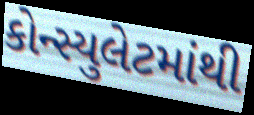
કોન્સ્યુલેટમાંથી